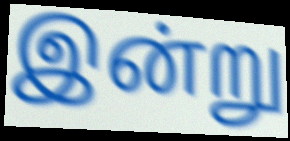
இன்று